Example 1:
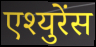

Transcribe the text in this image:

एश्युरेंस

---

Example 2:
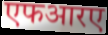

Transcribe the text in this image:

एफआरए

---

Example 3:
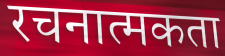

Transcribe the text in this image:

रचनात्मकता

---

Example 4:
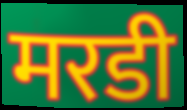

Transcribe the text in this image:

मरडी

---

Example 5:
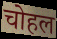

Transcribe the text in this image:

चोहल